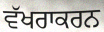
ਵੱਖਰਾਕਰਨ